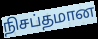
நிசப்தமான